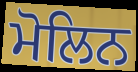
ਮੋਲਿਨ